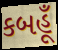
કબહૂઁ